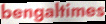
bengaltimes